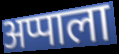
अप्पाला